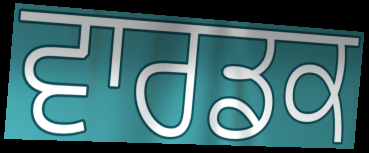
ਵਾਰਡਕ